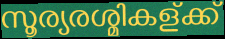
സൂര്യരശ്മികള്ക്ക്